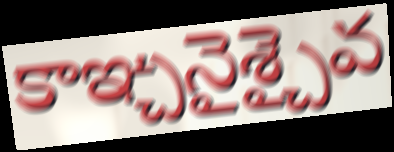
కాఞ్చనైశ్చైవ